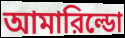
আমারিল্ডো